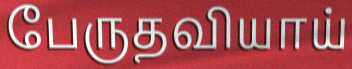
பேருதவியாய்